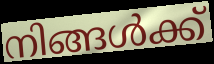
നിങ്ങൾക്ക്